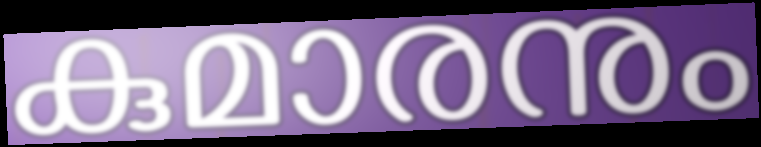
കുമാരനും